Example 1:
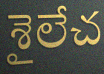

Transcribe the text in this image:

శైలేచ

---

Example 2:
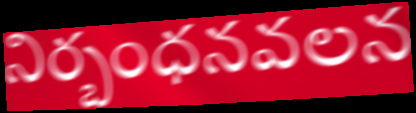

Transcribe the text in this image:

నిర్బంధనవలన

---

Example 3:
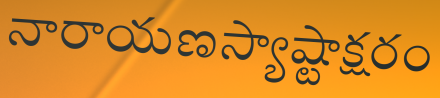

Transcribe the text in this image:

నారాయణస్యాష్టాక్షరం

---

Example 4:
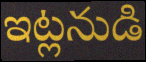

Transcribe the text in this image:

ఇట్లనుడి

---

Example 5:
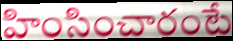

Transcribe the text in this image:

హింసించారంటే